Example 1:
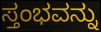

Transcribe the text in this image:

ಸ್ತಂಭವನ್ನು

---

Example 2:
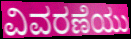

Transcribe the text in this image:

ವಿವರಣೆಯು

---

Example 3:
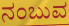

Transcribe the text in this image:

ನಂಬುವ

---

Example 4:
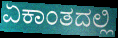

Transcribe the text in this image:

ಏಕಾಂತದಲ್ಲಿ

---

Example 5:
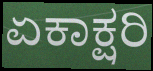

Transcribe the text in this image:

ಏಕಾಕ್ಷರಿ